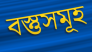
বস্তুসমূহ